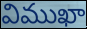
విముఖా